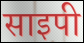
साइपी